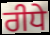
ਰੀਧੇ